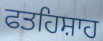
ਫਤਹਿਸ਼ਾਹ